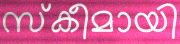
സ്കീമായി